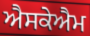
ਐਸਕੇਐਮ